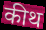
कीथ